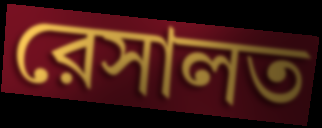
রেসালত